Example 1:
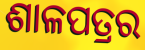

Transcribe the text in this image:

ଶାଳପତ୍ରର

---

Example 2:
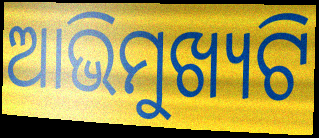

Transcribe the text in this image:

ଆଭିମୁଖ୍ୟଟି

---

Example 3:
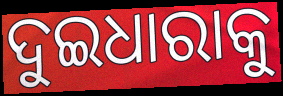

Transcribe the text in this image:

ଦୁଇଧାରାକୁ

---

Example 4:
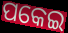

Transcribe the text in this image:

ପକେଇ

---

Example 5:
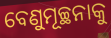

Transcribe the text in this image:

ବେଣୁମୂଚ୍ଛନାକୁ